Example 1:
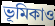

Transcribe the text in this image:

ভূমিকাও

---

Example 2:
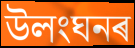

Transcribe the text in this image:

উলংঘনৰ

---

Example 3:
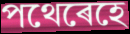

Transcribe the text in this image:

পথেৰেহে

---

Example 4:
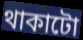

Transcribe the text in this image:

থাকাটো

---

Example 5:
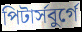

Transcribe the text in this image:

পিটাৰ্সবুৰ্গে